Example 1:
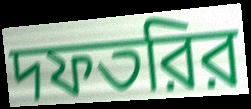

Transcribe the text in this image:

দফতরির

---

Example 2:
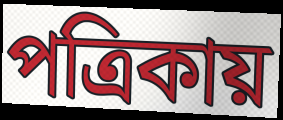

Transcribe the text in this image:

পত্রিকায়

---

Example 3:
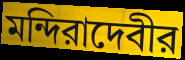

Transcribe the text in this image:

মন্দিরাদেবীর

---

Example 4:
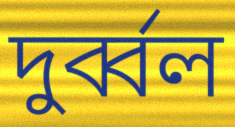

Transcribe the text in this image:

দুর্ব্বল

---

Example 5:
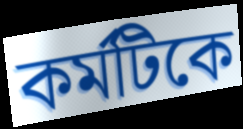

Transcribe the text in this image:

কর্মটিকে